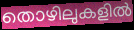
തൊഴിലുകളിൽ